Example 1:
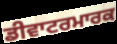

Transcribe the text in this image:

ਡੀਵਾਟਰਮਾਰਕ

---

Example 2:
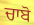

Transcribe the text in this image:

ਚਾਬੋ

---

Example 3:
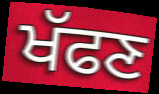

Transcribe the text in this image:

ਖੱਫਣ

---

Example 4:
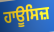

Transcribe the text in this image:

ਹਾਊਸਿਜ਼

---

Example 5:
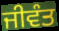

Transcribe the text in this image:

ਜੀਵੰਤ